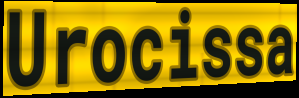
Urocissa